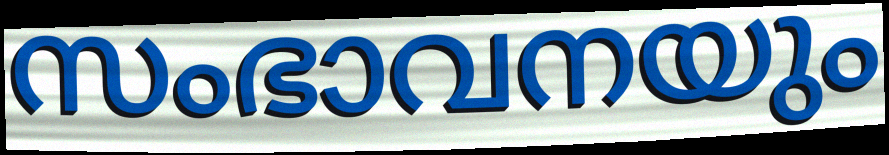
സംഭാവനയും